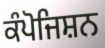
ਕੰਪੋਜਿਸ਼ਨ